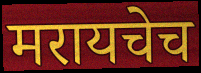
मरायचेच